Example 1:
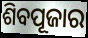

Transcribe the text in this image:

ଶିବପୂଜାର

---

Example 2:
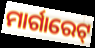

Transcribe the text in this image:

ମାର୍ଗାରେଟ୍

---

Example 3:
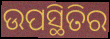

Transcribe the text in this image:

ଉପସ୍ଥିତିର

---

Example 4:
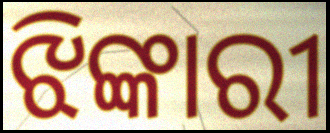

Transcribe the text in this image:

ଝିଙ୍କାରୀ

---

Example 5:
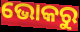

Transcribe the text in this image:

ଭୋକରୁ